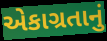
એકાગ્રતાનું